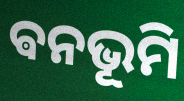
ଵନଭୂମି